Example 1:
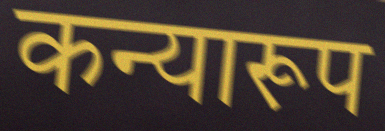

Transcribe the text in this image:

कन्यारूप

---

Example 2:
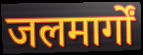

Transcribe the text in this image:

जलमार्गों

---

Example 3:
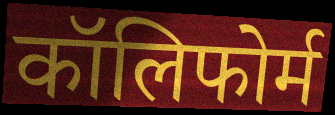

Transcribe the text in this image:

कॉलिफोर्म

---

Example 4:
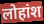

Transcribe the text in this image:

लोहांश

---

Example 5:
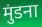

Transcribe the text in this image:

मुंडना